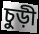
চুড়ী